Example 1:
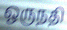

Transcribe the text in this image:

ஒருநதி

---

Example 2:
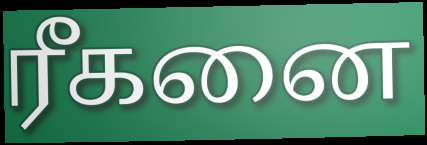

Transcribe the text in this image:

ரீகனை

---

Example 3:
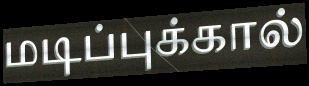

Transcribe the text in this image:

மடிப்புக்கால்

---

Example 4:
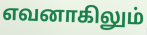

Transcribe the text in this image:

எவனாகிலும்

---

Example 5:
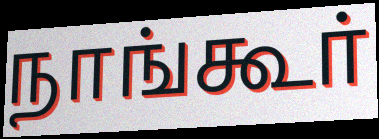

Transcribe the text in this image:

நாங்கூர்